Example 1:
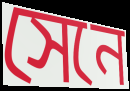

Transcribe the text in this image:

সেনে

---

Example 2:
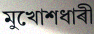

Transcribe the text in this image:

মুখোশধাৰী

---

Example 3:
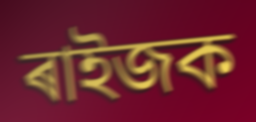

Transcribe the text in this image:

ৰাইজক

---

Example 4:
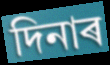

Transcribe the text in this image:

দিনাৰ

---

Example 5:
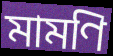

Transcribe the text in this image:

মামণি